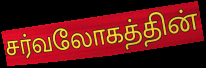
சர்வலோகத்தின்